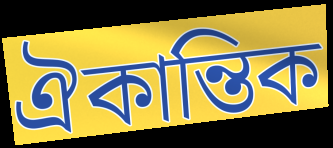
ঐকান্তিক